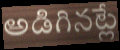
అడిగినట్లే